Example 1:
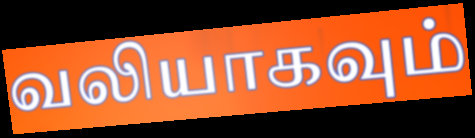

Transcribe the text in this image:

வலியாகவும்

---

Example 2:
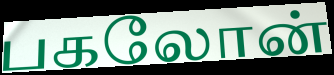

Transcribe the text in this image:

பகலோன்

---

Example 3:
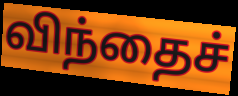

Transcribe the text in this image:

விந்தைச்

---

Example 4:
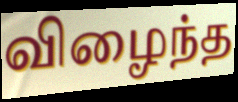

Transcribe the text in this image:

விழைந்த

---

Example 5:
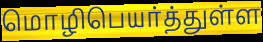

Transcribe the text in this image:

மொழிபெயர்த்துள்ள